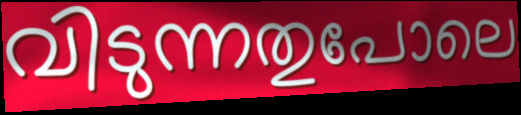
വിടുന്നതുപോലെ